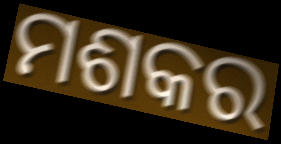
ମଶକର